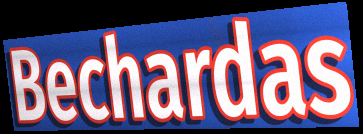
Bechardas